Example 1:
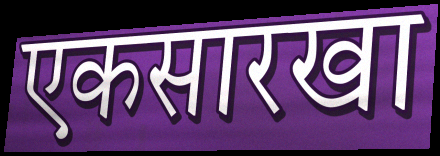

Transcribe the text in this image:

एकसारखा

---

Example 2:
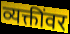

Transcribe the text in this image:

व्यक्तींवर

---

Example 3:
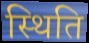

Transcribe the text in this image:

स्थिति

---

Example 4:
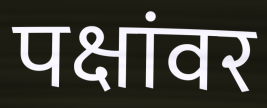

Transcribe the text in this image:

पक्षांवर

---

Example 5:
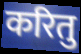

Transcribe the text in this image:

करितु